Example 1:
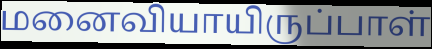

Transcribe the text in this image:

மனைவியாயிருப்பாள்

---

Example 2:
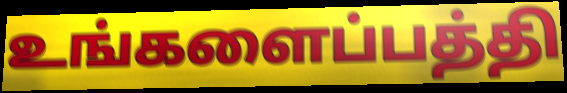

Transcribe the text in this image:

உங்களைப்பத்தி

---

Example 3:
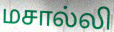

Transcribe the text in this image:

மசால்லி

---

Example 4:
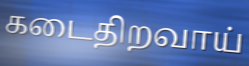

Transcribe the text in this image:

கடைதிறவாய்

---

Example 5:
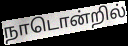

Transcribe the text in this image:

நாடொன்றில்